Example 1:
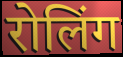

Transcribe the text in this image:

रोलिंग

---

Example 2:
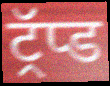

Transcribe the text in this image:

ट्रॅप्ड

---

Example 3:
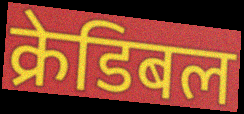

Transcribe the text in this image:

क्रेडिबल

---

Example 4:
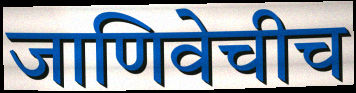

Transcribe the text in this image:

जाणिवेचीच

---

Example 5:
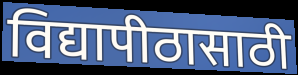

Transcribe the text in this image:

विद्यापीठासाठी